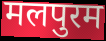
मलपुरम